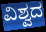
ವಿಶ್ವದ